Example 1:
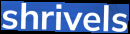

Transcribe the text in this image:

shrivels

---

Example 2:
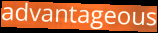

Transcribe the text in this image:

advantageous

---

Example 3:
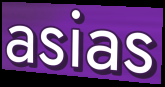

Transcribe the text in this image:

asias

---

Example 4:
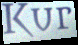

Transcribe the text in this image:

Kur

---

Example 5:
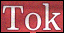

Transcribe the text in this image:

Tok